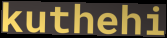
kuthehi